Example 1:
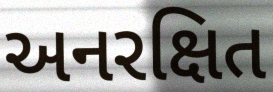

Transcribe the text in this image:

અનરક્ષિત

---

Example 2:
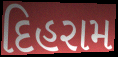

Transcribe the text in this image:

દિહરામ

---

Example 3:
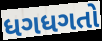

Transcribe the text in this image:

ધગધગતો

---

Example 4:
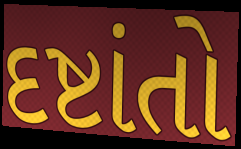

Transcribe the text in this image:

દષ્ટાંતો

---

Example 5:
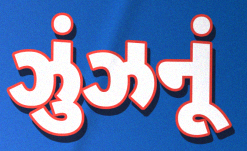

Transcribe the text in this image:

ઝુંઝનૂં